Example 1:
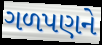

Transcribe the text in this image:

ગળપણને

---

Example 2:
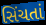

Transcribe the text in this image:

સિંચતાં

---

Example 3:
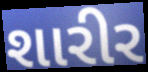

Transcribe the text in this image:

શારીર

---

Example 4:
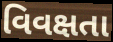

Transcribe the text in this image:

વિવક્ષતા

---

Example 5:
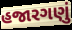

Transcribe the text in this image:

હજારગણું